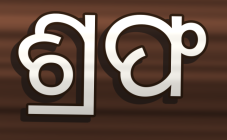
ଶ୍ରଫ